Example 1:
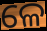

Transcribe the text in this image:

ଳେ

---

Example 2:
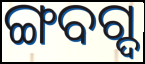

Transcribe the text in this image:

ଙ୍ଗବଗ୍ଦ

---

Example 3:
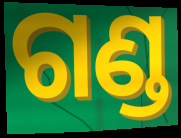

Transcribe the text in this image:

ଗଣ୍ଡ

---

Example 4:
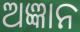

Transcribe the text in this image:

ଅଜ୍ଞାନ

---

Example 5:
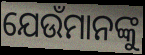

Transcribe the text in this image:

ଯେଉଁମାନଙ୍କୁ